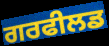
ਗਰਫੀਲਡ